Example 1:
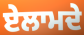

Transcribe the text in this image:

ਏਲਾਮਦੇ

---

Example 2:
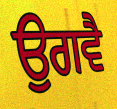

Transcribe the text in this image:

ਉਗਵੈ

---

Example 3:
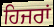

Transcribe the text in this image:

ਹਿਜਰਾਂ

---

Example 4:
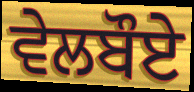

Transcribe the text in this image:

ਵੇਲਬੌਏ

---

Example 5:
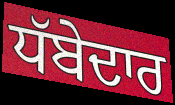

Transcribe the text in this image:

ਧੱਬੇਦਾਰ